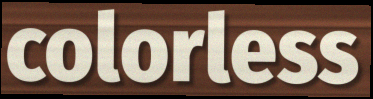
colorless